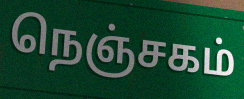
நெஞ்சகம்